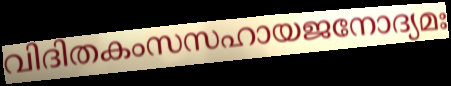
വിദിതകംസസഹായജനോദ്യമഃ